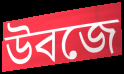
উবজে